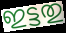
ഇട്ടതു